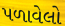
પળાવેલો